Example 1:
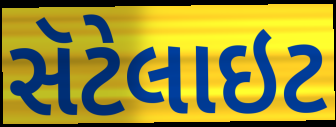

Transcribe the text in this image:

સૅટેલાઇટ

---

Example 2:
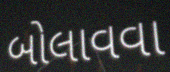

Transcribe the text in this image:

બોલાવવા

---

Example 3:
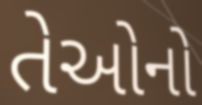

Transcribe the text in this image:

તેઓનો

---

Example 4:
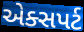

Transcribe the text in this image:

એક્સપર્ટ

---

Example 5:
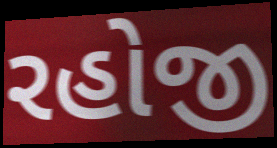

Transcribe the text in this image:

રહોજી